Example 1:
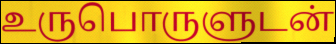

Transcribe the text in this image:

உருபொருளுடன்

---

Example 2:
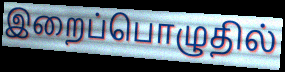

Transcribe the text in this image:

இறைப்பொழுதில்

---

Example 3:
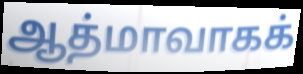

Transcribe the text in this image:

ஆத்மாவாகக்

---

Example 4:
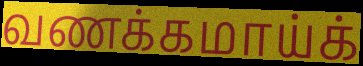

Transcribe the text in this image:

வணக்கமாய்க்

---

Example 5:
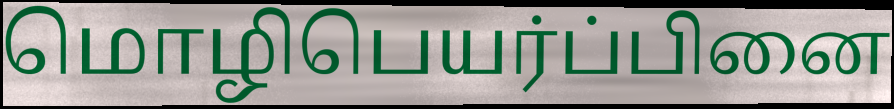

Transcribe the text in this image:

மொழிபெயர்ப்பினை